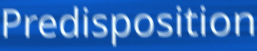
Predisposition